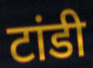
टांडी